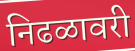
निढळावरी